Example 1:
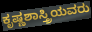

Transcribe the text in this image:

ಕೃಷ್ಣಶಾಸ್ತ್ರಿಯವರು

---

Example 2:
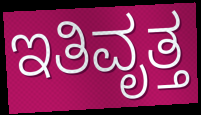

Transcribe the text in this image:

ಇತಿವೃತ್ತ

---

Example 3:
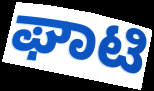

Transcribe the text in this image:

ಘಾಟಿ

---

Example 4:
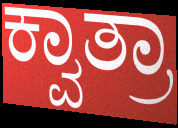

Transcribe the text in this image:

ಕ್ವಾತ್ರಾ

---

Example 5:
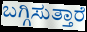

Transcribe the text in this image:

ಬಗ್ಗಿಸುತ್ತಾರೆ